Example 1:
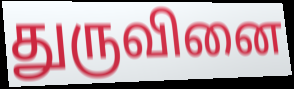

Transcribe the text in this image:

துருவினை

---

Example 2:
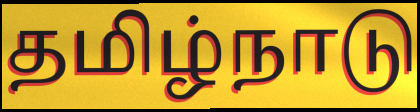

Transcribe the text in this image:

தமிழ்நாடு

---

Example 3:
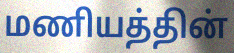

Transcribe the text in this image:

மணியத்தின்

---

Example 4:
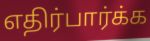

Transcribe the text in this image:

எதிர்பார்க்க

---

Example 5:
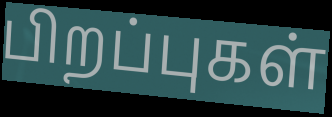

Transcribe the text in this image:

பிறப்புகள்